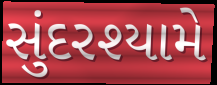
સુંદરશ્યામે